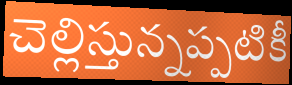
చెల్లిస్తున్నప్పటికీ